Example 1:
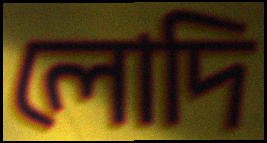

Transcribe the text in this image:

লোদি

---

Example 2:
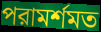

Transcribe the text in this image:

পরামর্শমত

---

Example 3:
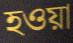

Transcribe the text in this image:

হওয়া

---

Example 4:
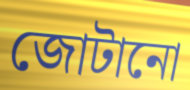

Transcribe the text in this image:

জোটানো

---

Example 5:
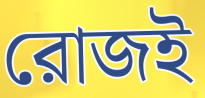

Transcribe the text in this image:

রোজই